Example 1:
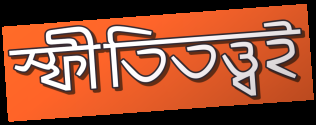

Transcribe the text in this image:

স্ফীতিতত্ত্বই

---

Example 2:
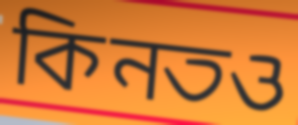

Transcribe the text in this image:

কিনতও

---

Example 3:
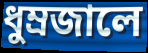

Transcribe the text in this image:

ধুম্রজালে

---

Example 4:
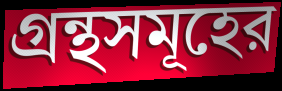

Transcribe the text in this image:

গ্রন্থসমূহের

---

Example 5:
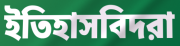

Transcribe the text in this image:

ইতিহাসবিদরা